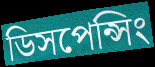
ডিসপেন্সিং